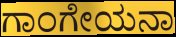
ಗಾಂಗೇಯನಾ